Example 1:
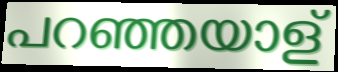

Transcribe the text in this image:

പറഞ്ഞയാള്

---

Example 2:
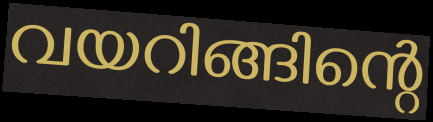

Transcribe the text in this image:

വയറിങ്ങിന്റെ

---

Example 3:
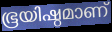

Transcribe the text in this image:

ഭൂയിഷ്ഠമാണ്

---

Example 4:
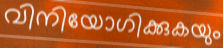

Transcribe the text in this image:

വിനിയോഗിക്കുകയും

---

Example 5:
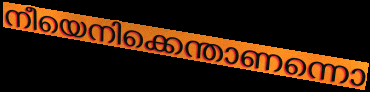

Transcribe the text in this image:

നീയെനിക്കെന്താണന്നൊ